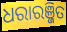
ଧରାରଞ୍ଜିତ